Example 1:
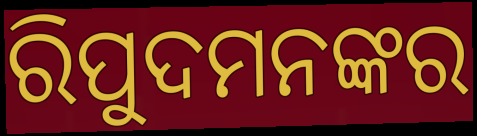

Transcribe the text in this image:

ରିପୁଦମନଙ୍କର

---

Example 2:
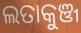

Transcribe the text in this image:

ଲତାକୁଞ୍ଜ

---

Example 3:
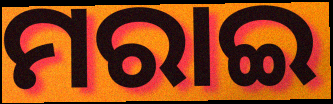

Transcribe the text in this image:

ମରାଇ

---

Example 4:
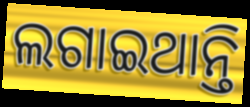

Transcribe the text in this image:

ଲଗାଇଥାନ୍ତି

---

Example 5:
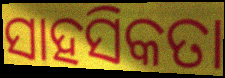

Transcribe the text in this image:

ସାହସିକତା